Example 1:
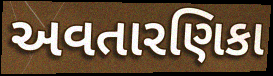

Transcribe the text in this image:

અવતારણિકા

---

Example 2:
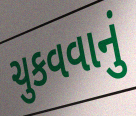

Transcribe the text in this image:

ચુકવવાનું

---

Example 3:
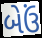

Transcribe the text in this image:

બેઉં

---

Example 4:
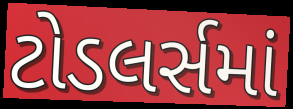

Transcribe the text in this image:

ટોડલર્સમાં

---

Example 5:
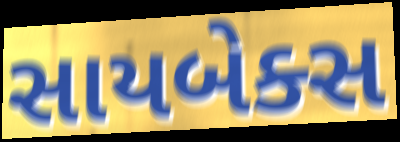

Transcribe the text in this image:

સાયબેક્સ